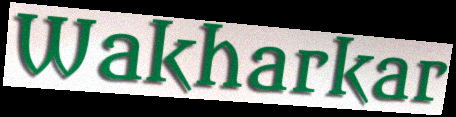
Wakharkar